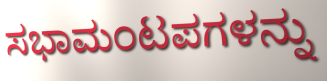
ಸಭಾಮಂಟಪಗಳನ್ನು